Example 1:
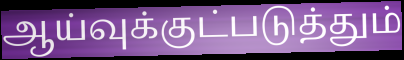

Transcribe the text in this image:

ஆய்வுக்குட்படுத்தும்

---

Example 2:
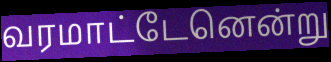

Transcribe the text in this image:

வரமாட்டேனென்று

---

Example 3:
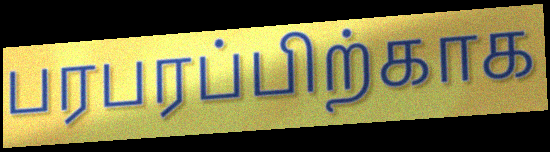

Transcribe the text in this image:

பரபரப்பிற்காக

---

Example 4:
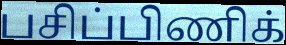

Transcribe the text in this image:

பசிப்பிணிக்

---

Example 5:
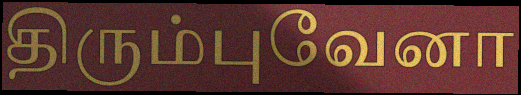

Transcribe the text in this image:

திரும்புவேனா